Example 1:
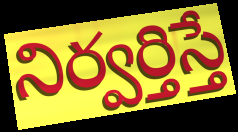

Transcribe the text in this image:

నిర్వర్తిస్తే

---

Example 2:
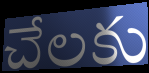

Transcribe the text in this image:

చేలకు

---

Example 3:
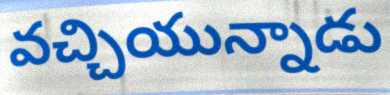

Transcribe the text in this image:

వచ్చియున్నాడు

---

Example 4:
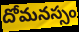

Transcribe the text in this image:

దోమనస్సం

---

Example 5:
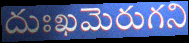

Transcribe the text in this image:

దుఃఖమెరుగని